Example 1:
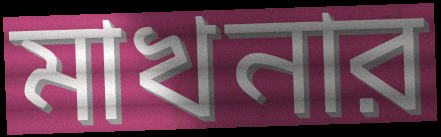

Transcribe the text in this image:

মাখনার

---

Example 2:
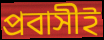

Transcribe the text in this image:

প্রবাসীই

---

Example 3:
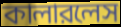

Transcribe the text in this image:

কালারলেস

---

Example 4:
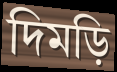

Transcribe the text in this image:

দিমড়ি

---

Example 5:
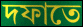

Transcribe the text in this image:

দফাতে